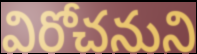
విరోచనుని